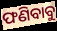
ଫଣିବାବୁ